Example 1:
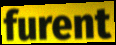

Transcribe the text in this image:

furent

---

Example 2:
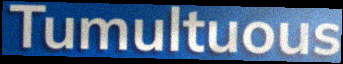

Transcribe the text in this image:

Tumultuous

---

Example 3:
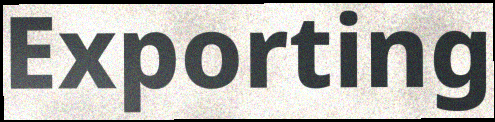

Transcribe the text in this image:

Exporting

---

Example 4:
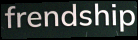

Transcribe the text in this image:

frendship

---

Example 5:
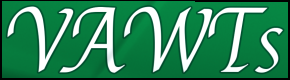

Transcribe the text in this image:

VAWTs